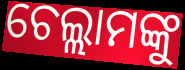
ଚେଲ୍ଲାମଙ୍କୁ